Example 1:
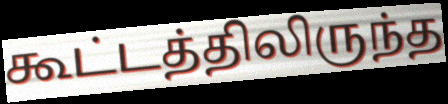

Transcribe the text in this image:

கூட்டத்திலிருந்த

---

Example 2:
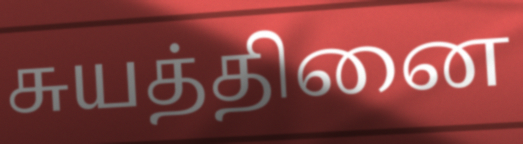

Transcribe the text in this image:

சுயத்தினை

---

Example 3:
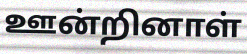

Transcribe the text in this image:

ஊன்றினாள்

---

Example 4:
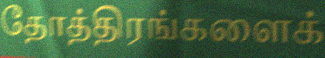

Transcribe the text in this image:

தோத்திரங்களைக்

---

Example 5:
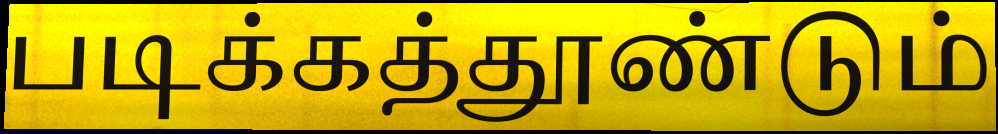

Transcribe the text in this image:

படிக்கத்தூண்டும்